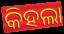
କିହଲା